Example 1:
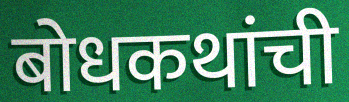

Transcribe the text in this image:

बोधकथांची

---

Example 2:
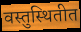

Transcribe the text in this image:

वस्तुस्थितीत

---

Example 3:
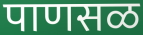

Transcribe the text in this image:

पाणसळ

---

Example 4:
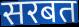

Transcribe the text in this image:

सरबत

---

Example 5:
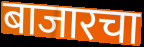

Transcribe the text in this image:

बाजारचा